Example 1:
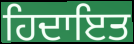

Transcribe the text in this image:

ਹਿਦਾਇਤ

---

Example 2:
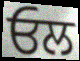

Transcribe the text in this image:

ਓਲ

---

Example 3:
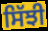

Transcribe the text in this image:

ਸਿੱਝੀ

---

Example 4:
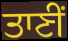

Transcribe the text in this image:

ਤਾਣੀਂ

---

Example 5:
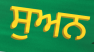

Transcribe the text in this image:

ਸੁਅਨ